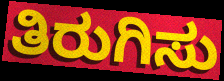
ತಿರುಗಿಸು